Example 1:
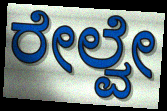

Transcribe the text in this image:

ರೇಲ್ವೇ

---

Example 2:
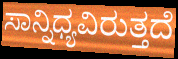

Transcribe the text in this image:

ಸಾನ್ನಿಧ್ಯವಿರುತ್ತದೆ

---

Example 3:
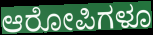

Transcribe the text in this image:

ಆರೋಪಿಗಳೂ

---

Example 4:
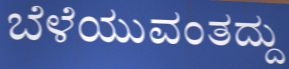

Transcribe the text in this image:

ಬೆಳೆಯುವಂತದ್ದು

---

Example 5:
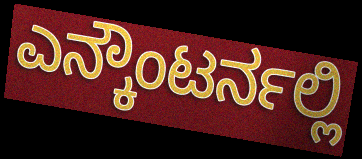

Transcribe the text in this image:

ಎನ್ಕೌಂಟರ್ನಲ್ಲಿ